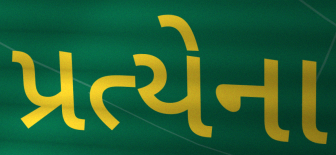
પ્રત્યેના